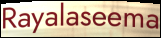
Rayalaseema